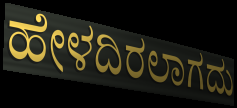
ಹೇಳದಿರಲಾಗದು